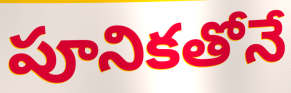
పూనికతోనే